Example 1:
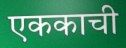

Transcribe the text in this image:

एककाची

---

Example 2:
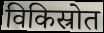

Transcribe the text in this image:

विकिस्रोत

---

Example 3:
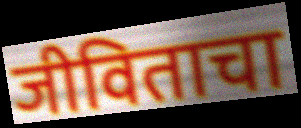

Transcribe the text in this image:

जीविताचा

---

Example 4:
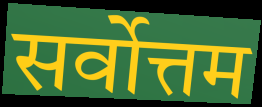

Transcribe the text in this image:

सर्वोत्तम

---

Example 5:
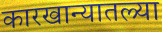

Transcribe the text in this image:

कारखान्यातल्या